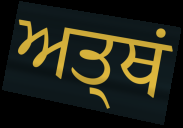
ਅਤ੍ਥਂ